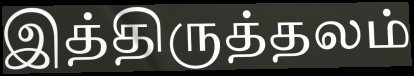
இத்திருத்தலம்